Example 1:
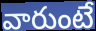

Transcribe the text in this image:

వారుంటే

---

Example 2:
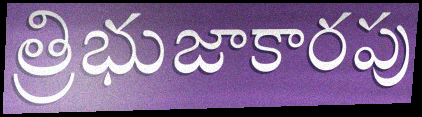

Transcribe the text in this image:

త్రిభుజాకారపు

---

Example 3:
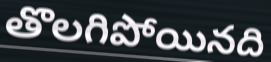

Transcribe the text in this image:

తొలగిపోయినది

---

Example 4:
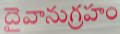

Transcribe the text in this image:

దైవానుగ్రహం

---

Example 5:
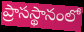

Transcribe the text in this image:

ప్రాసస్థానంలో